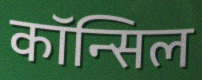
कॉन्सिल